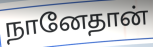
நானேதான்